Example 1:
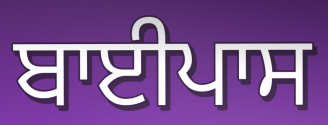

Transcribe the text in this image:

ਬਾਈਪਾਸ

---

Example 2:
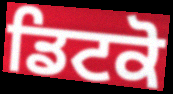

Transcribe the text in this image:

ਡਿਟਕੋ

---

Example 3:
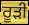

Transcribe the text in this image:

ਰੂੜੀ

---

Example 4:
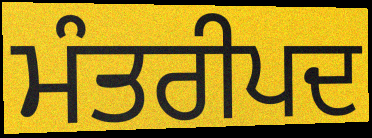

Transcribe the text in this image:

ਮੰਤਰੀਪਦ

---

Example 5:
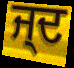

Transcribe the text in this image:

ਜ੍ਦ